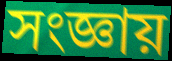
সংজ্ঞায়